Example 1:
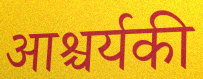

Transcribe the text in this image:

आश्चर्यकी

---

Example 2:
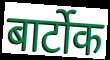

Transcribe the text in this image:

बार्टोक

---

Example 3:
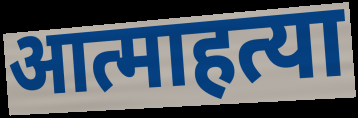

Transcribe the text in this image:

आत्माहत्या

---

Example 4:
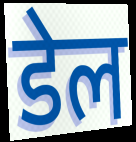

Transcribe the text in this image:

डेल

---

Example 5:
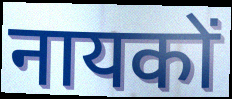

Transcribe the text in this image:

नायकों